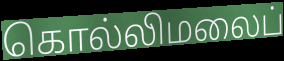
கொல்லிமலைப்